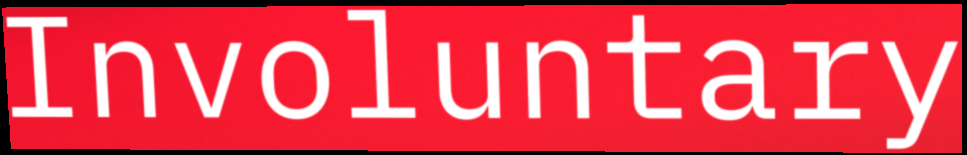
Involuntary